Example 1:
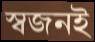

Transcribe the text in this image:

স্বজনই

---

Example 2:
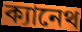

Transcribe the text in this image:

ক্যানেথ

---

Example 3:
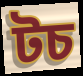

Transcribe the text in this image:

টচ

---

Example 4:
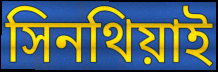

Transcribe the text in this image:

সিনথিয়াই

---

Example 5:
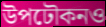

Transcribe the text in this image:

উপঢৌকনও